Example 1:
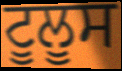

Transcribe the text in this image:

ਟੂਲੂਸ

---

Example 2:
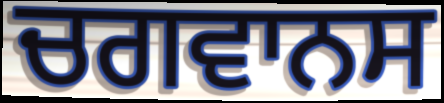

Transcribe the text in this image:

ਚਗਵਾਨਸ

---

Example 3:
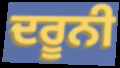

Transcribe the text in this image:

ਦਰੂਨੀ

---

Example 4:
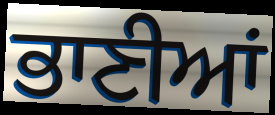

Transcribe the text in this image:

ਭਾਣੀਆਂ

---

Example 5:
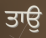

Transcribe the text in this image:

ਤਾਉ